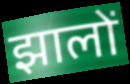
झालों